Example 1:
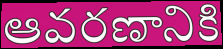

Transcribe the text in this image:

ఆవరణానికి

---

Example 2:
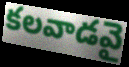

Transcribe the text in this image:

కలవాడవై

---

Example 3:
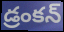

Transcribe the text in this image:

డ్రంకన్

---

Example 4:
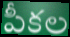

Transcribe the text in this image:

పీకల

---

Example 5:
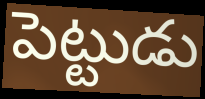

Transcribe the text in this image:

పెట్టుడు